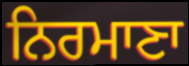
ਨਿਰਮਾਣਾ